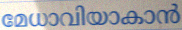
മേധാവിയാകാൻ